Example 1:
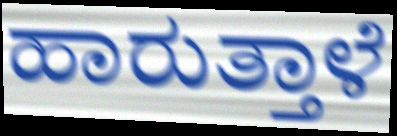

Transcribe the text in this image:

ಹಾರುತ್ತಾಳೆ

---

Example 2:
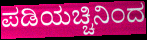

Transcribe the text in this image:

ಪಡಿಯಚ್ಚಿನಿಂದ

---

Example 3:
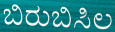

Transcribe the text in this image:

ಬಿರುಬಿಸಿಲ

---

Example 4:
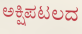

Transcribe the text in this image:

ಅಕ್ಷಿಪಟಲದ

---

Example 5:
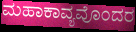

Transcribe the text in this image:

ಮಹಾಕಾವ್ಯವೊಂದರ